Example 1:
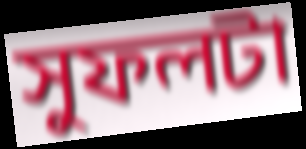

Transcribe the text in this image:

সুফলটা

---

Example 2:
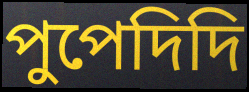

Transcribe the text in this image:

পুপেদিদি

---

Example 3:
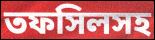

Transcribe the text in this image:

তফসিলসহ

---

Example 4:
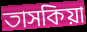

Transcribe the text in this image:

তাসকিয়া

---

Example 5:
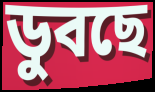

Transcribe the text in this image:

ডুবছে